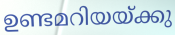
ഉണ്ടമറിയയ്ക്കു